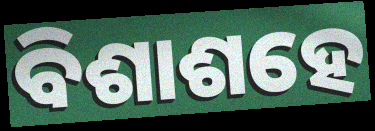
ବିଶାଶହେ